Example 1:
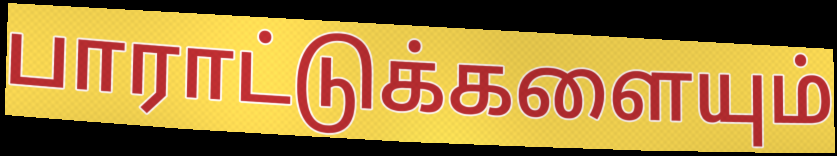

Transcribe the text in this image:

பாராட்டுக்களையும்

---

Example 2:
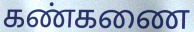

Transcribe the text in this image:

கண்கணை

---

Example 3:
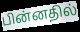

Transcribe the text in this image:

பின்னதில்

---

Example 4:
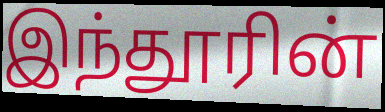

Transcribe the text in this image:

இந்தூரின்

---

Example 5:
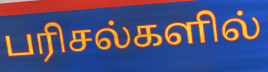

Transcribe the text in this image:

பரிசல்களில்